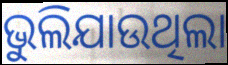
ଭୁଲିଯାଉଥିଲା